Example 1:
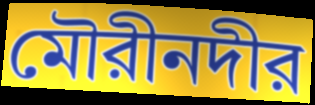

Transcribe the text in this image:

মৌরীনদীর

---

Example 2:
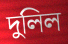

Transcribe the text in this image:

দুলিল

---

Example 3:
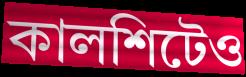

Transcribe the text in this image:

কালশিটেও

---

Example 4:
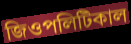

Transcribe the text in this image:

জিওপলিটিকাল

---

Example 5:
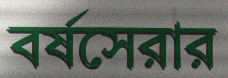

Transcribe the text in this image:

বর্ষসেরার